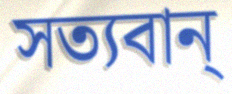
সত্যবান্